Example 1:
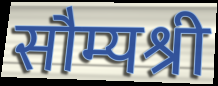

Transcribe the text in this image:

सौम्यश्री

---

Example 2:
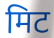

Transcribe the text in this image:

मिट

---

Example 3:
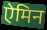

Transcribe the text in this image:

ऐमिन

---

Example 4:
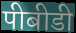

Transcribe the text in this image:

पीबीडी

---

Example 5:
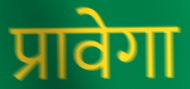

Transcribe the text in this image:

प्रावेगा